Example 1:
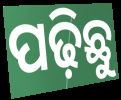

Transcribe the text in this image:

ପଢ଼ିଛୁ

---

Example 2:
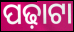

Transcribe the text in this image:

ପଢ଼ାଟା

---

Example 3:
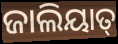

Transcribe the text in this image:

ଜାଲିୟାତ୍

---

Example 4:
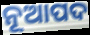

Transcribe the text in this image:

ନୂଆପଦ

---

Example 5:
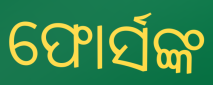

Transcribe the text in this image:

ଫୋର୍ସଙ୍କ